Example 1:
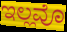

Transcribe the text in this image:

ಇಲ್ಲವೊ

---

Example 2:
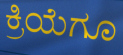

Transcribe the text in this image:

ಕ್ರಿಯೆಗೂ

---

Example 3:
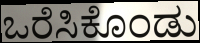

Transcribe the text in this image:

ಒರೆಸಿಕೊಂಡು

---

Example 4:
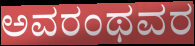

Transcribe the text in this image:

ಅವರಂಥವರ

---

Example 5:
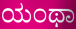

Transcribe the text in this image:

ಯಂಥಾ